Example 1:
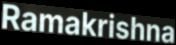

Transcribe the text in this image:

Ramakrishna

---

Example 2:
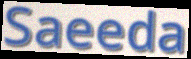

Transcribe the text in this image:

Saeeda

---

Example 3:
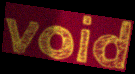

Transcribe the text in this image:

void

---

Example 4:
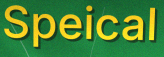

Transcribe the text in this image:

Speical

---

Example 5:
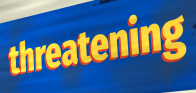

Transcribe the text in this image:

threatening